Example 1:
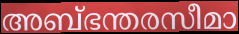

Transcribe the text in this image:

അബ്ഭന്തരസീമാ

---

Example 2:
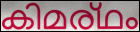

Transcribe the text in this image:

കിമര്ഥം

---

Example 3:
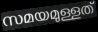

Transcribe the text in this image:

സമയമുള്ളത്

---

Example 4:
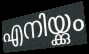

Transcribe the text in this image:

എനിയ്ക്കും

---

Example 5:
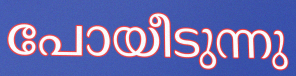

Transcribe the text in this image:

പോയീടുന്നു